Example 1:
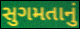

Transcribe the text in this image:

સુગમતાનું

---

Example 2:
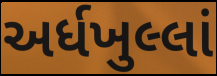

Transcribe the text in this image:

અર્ધખુલ્લાં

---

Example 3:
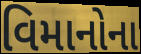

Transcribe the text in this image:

વિમાનોના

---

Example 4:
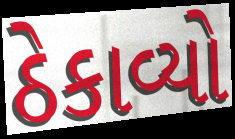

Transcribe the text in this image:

ઠેકાવ્યો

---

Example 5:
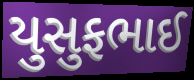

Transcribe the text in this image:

યુસુફભાઈ